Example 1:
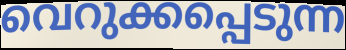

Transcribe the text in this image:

വെറുക്കപ്പെടുന്ന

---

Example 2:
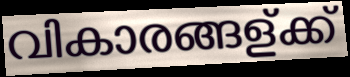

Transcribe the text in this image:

വികാരങ്ങള്ക്ക്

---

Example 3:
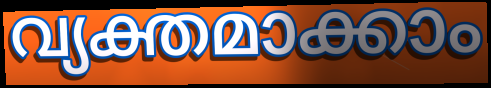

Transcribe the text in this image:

വ്യക്തമാക്കാം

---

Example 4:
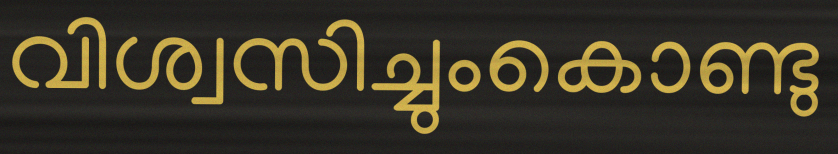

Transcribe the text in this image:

വിശ്വസിച്ചുംകൊണ്ടു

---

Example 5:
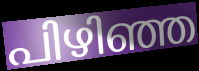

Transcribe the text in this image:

പിഴിഞ്ഞ